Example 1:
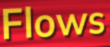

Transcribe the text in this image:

Flows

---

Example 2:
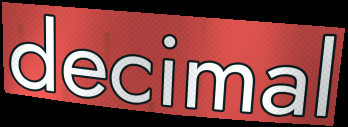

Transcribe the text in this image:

decimal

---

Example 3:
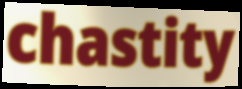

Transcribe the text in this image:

chastity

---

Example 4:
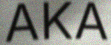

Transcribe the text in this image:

AKA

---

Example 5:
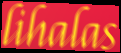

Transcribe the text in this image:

lihalas